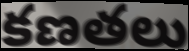
కణతలు